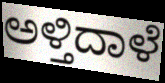
ಅಳ್ತಿದಾಳೆ